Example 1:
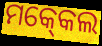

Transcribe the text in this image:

ମକ୍‍କେଲ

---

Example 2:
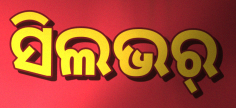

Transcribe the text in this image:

ସିଲଭର୍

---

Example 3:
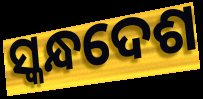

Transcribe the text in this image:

ସ୍କନ୍ଧଦେଶ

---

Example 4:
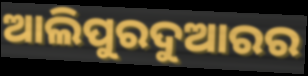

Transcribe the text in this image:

ଆଲିପୁରଦୁଆରର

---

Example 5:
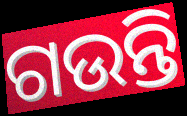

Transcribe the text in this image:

ଗଉନ୍ତି